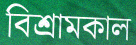
বিশ্রামকাল